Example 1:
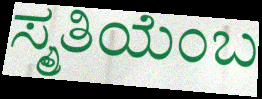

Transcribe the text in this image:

ಸ್ಮೃತಿಯೆಂಬ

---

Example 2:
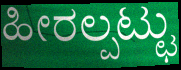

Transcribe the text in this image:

ಹೀರಲ್ಪಟ್ಟು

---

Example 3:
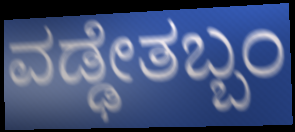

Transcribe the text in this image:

ವಡ್ಢೇತಬ್ಬಂ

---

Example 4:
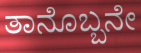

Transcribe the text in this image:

ತಾನೊಬ್ಬನೇ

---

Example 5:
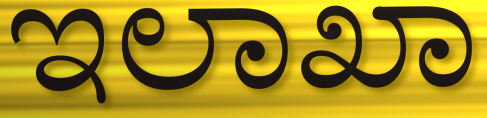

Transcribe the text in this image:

ಇಲಾಖಾ